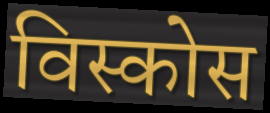
विस्कोस